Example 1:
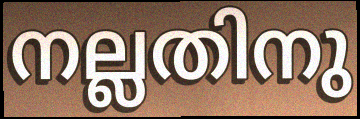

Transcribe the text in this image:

നല്ലതിനു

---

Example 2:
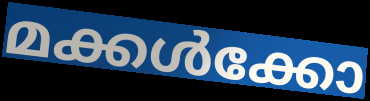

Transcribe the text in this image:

മക്കൾക്കോ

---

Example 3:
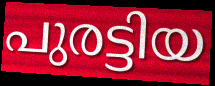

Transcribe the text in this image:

പുരട്ടിയ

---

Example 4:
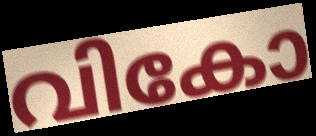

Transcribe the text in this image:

വികോ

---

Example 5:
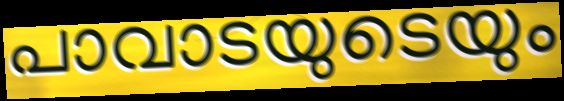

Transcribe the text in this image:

പാവാടയുടെയും